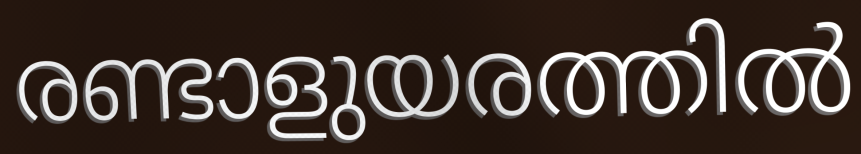
രണ്ടാളുയരത്തിൽ